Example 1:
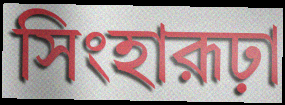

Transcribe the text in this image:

সিংহারূঢ়া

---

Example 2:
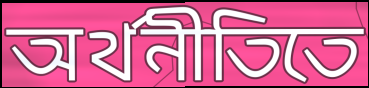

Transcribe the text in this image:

অর্থনীতিতে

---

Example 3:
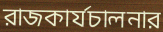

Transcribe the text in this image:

রাজকার্যচালনার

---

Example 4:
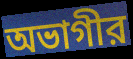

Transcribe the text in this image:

অভাগীর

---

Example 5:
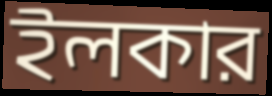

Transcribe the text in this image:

ইলকার